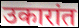
उकारांत